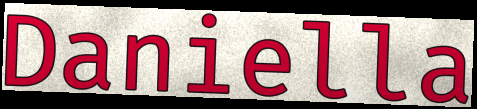
Daniella